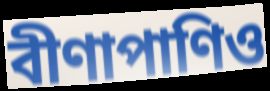
বীণাপাণিও